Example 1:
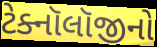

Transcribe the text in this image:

ટેક્નૉલૉજીનો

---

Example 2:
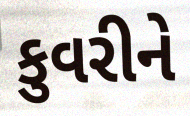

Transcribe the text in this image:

કુવરીને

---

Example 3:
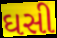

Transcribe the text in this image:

ઘસી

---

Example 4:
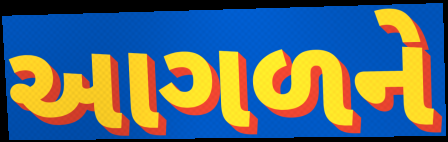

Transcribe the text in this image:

આગળને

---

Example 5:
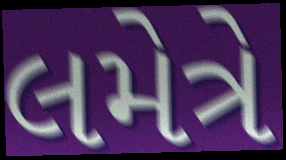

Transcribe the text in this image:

લમેત્રે